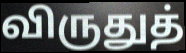
விருதுத்